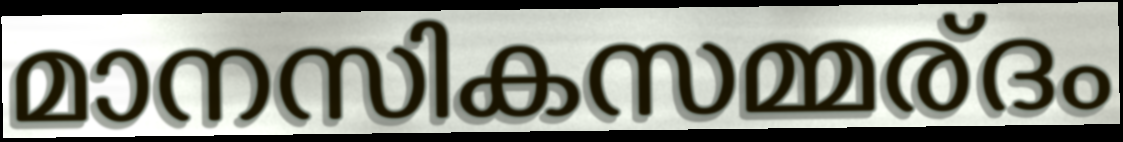
മാനസികസമ്മര്ദം